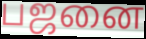
பஜனை